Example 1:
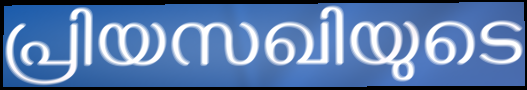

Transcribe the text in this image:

പ്രിയസഖിയുടെ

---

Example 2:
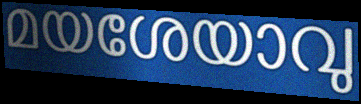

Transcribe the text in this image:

മയശേയാവു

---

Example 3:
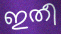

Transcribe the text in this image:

ഇതീ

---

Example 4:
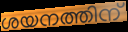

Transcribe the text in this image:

ശയനത്തിന്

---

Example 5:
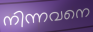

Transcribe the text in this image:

നിന്നവനെ